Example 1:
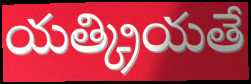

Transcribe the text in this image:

యత్క్రియతే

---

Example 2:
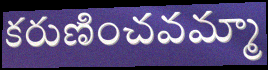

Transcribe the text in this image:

కరుణించవమ్మా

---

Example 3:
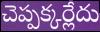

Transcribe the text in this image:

చెప్పక్కర్లేదు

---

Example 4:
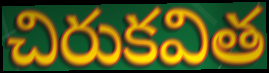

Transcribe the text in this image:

చిరుకవిత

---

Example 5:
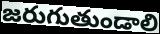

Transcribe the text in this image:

జరుగుతుండాలి